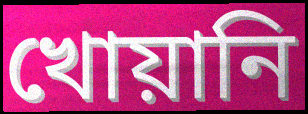
খোয়ানি